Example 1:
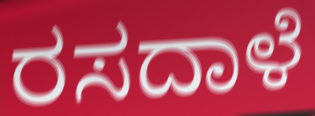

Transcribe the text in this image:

ರಸದಾಳೆ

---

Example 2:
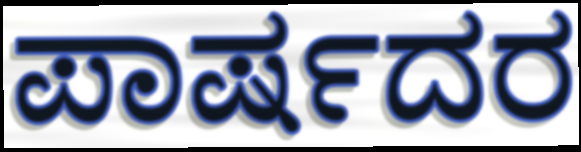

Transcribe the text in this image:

ಪಾರ್ಷದರ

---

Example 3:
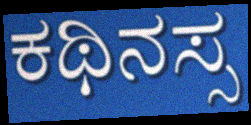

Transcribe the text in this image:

ಕಥಿನಸ್ಸ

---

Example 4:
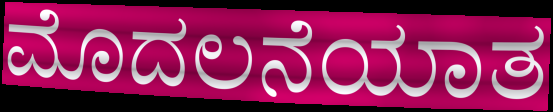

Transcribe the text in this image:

ಮೊದಲನೆಯಾತ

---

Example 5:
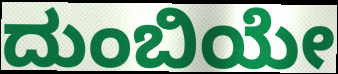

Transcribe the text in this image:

ದುಂಬಿಯೇ